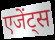
एजेंट्स